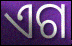
ଏଗ